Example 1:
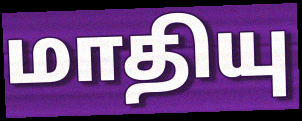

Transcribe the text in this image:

மாதியு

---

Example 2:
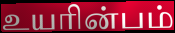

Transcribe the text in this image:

உயரின்பம்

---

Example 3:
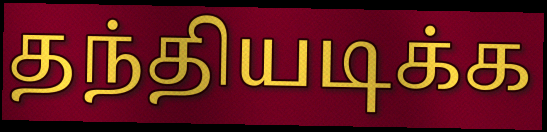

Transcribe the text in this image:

தந்தியடிக்க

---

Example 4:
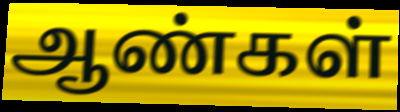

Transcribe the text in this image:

ஆண்கள்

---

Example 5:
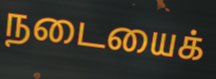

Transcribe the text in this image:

நடையைக்